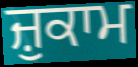
ਜ਼ੁਕਾਮ